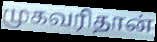
முகவரிதான்